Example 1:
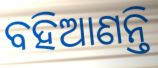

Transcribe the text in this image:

ବହିଆଣନ୍ତି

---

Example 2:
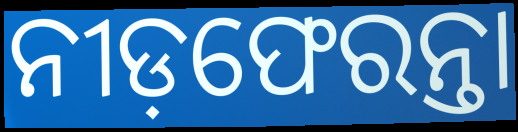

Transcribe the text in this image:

ନୀଡ଼ଫେରନ୍ତା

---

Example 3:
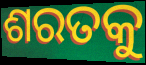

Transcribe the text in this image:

ଶରତକୁ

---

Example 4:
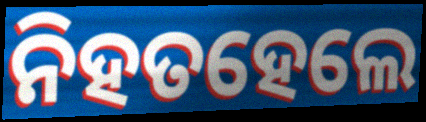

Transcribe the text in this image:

ନିହତହେଲେ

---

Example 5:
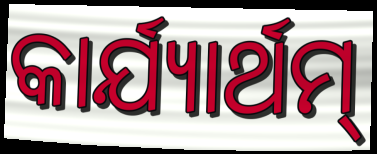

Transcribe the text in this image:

କାର୍ଯ୍ୟାର୍ଥମ୍